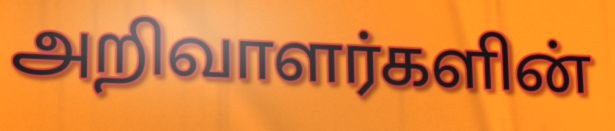
அறிவாளர்களின்